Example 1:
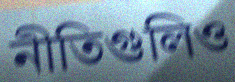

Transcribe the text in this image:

নীতিগুলিও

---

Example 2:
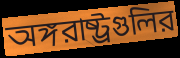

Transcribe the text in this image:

অঙ্গরাষ্ট্রগুলির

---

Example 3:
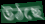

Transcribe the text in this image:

উঠছে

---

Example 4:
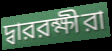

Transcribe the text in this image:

দ্বাররক্ষীরা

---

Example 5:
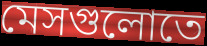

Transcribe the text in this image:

মেসগুলোতে